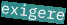
exigere